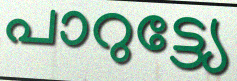
പാറുട്ട്യേ